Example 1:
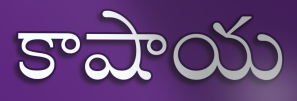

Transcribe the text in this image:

కాషాయ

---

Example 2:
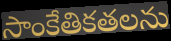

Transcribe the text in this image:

సాంకేతికతలను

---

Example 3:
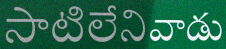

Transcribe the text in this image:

సాటిలేనివాడు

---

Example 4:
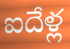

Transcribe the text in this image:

ఐదేళ్ల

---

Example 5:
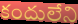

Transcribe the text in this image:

కందులేని